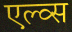
एल्व्स